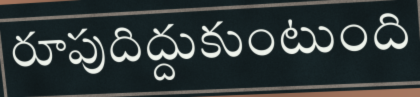
రూపుదిద్దుకుంటుంది